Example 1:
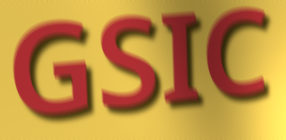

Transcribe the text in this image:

GSIC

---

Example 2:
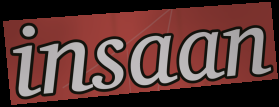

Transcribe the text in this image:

insaan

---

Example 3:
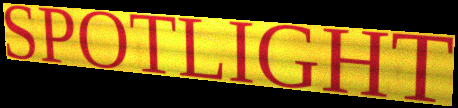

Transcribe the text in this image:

SPOTLIGHT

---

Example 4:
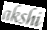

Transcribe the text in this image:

akshi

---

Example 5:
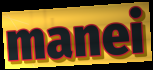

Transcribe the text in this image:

manei